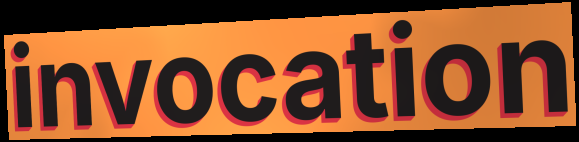
invocation